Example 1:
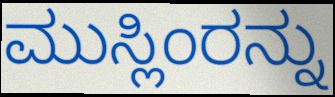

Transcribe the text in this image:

ಮುಸ್ಲಿಂರನ್ನು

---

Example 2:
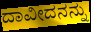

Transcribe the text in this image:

ದಾವೀದನನ್ನು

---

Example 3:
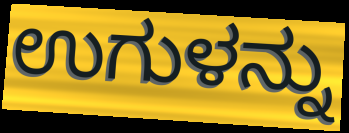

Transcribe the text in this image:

ಉಗುಳನ್ನು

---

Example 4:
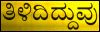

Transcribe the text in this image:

ತಿಳಿದಿದ್ದುವು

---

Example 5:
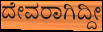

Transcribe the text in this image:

ದೇವರಾಗಿದ್ದೀ